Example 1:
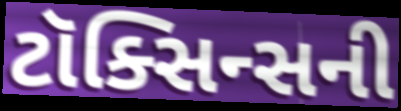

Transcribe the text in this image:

ટૉક્સિન્સની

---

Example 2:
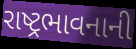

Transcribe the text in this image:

રાષ્ટ્રભાવનાની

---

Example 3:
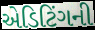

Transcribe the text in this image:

એડિટિંગની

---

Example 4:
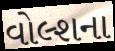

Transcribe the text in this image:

વોલ્શના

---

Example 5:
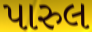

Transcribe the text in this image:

પારુલ